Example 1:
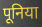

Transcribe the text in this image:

पूनिया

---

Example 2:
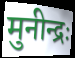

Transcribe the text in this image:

मुनीन्द्रः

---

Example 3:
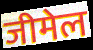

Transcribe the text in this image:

जीमेल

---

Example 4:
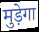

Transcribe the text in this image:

मुड़ेगा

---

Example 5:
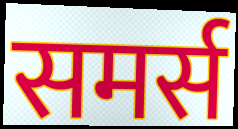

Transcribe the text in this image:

समर्स